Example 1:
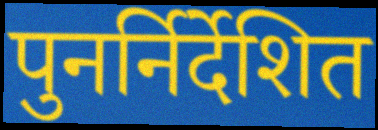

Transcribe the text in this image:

पुनर्निर्देशित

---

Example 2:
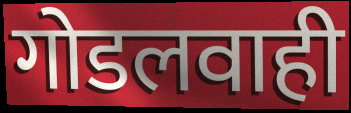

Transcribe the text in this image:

गोडलवाही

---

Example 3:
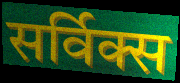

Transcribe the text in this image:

सर्विक्स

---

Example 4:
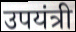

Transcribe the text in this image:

उपयंत्री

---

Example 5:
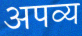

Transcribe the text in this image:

अपव्य